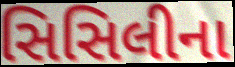
સિસિલીના